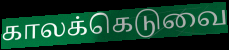
காலக்கெடுவை